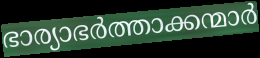
ഭാര്യാഭർത്താക്കന്മാർ